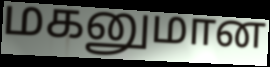
மகனுமான